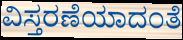
ವಿಸ್ತರಣೆಯಾದಂತೆ